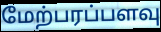
மேற்பரப்பளவு